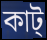
কাট্